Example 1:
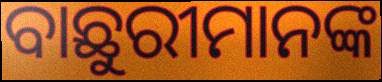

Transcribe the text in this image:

ବାଛୁରୀମାନଙ୍କ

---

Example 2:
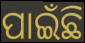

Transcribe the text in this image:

ପାଇଁଛି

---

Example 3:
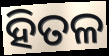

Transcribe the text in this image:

ହିତଳ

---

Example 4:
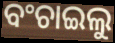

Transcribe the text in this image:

ବଂଚାଇଲୁ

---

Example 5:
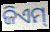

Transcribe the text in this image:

ଜିଏମ୍